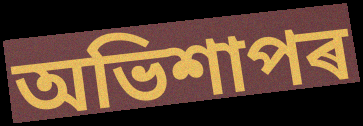
অভিশাপৰ